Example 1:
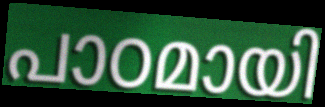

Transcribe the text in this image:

പാഠമായി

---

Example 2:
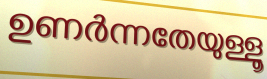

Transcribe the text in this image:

ഉണർന്നതേയുള്ളൂ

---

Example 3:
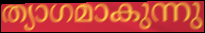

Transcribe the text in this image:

ത്യാഗമാകുന്നു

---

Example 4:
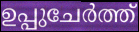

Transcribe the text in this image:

ഉപ്പുചേർത്ത്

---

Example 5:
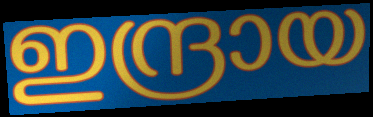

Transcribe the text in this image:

ഇന്ദ്രായ